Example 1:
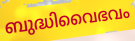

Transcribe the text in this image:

ബുദ്ധിവൈഭവം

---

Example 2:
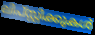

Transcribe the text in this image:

ലിപ്സ്റ്റിക്കുകൾ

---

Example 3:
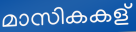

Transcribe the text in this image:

മാസികകള്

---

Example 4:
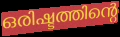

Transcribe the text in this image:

ഒരിഷ്ടത്തിന്റെ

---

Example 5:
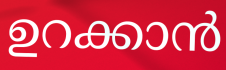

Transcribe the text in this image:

ഉറക്കാൻ